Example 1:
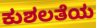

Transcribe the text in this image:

ಕುಶಲತೆಯ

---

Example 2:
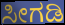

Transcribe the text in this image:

ಸೀಗಡಿ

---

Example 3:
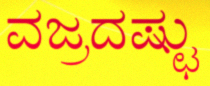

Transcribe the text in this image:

ವಜ್ರದಷ್ಟು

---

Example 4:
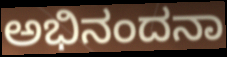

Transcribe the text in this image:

ಅಭಿನಂದನಾ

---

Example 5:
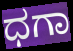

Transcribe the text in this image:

ಧಗಾ